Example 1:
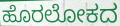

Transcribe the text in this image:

ಹೊರಲೋಕದ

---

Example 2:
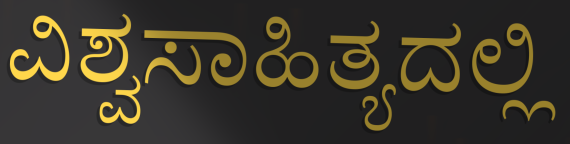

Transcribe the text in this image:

ವಿಶ್ವಸಾಹಿತ್ಯದಲ್ಲಿ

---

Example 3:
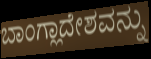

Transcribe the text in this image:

ಬಾಂಗ್ಲಾದೇಶವನ್ನು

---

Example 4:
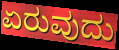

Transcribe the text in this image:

ಏರುವುದು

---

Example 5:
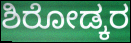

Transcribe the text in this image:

ಶಿರೋಡ್ಕರ